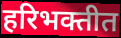
हरिभक्तीत